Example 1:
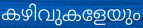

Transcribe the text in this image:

കഴിവുകളേയും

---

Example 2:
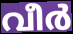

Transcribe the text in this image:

വീർ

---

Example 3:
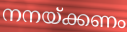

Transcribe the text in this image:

നനയ്ക്കണം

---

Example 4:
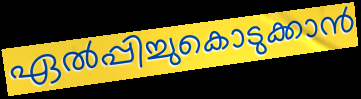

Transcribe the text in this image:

ഏൽപ്പിച്ചുകൊടുക്കാൻ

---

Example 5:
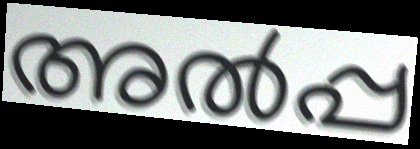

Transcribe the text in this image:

അൽപ്പ